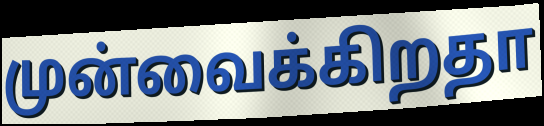
முன்வைக்கிறதா